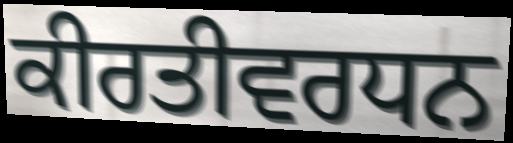
ਕੀਰਤੀਵਰਧਨ